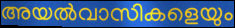
അയൽവാസികളെയും